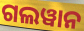
ଗଲୱାନ